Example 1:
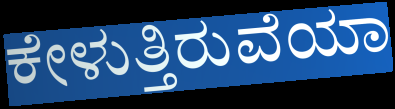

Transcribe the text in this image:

ಕೇಳುತ್ತಿರುವೆಯಾ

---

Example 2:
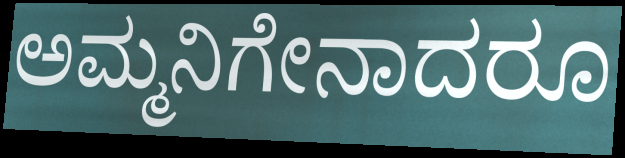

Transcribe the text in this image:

ಅಮ್ಮನಿಗೇನಾದರೂ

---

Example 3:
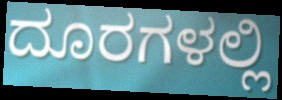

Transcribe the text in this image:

ದೂರಗಳಲ್ಲಿ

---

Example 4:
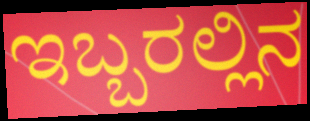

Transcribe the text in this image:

ಇಬ್ಬರಲ್ಲಿನ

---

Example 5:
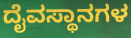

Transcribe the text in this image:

ದೈವಸ್ಥಾನಗಳ